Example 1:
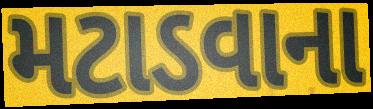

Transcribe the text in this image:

મટાડવાના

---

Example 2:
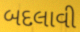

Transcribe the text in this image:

બદલાવી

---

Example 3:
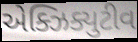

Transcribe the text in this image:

એક્ઝિક્યુટીવ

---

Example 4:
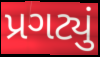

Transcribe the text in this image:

પ્રગટ્યું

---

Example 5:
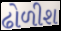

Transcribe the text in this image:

ઢોળીશ